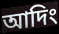
আদিং